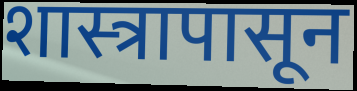
शास्त्रापासून